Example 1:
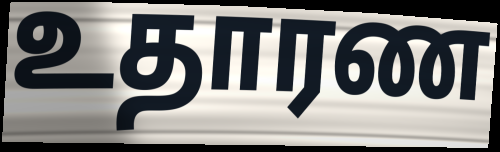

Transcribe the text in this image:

உதாரண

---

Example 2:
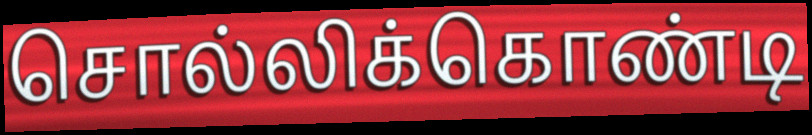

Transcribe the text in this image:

சொல்லிக்கொண்டி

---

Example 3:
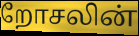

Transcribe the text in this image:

றோசலின்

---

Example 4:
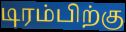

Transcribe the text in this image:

டிரம்பிற்கு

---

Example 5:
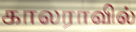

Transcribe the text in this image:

காலராவில்